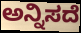
ಅನ್ನಿಸದೆ